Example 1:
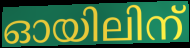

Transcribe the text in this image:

ഓയിലിന്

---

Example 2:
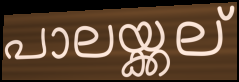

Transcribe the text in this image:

പാലയ്ക്കല്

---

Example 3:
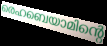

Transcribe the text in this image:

രെഹബെയാമിന്റെ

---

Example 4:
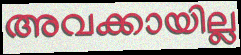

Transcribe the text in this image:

അവക്കായില്ല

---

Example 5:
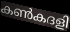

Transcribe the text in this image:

കൺകദളി